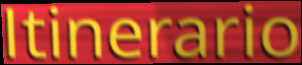
Itinerario